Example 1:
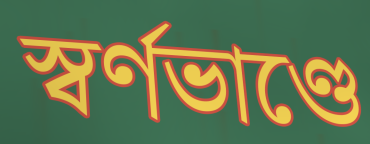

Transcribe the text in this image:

স্বর্ণভাণ্ডে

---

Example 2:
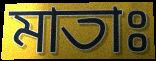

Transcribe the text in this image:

মাতাঃ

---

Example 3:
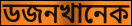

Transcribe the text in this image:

ডজনখানেক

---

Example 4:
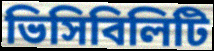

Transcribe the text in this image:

ভিসিবিলিটি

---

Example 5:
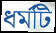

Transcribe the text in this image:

ধর্মটি